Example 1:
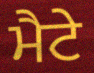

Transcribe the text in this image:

ਮੈਟੇ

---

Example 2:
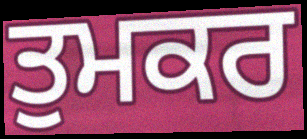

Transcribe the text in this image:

ਤੁਮਕਰ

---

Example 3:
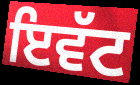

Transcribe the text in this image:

ਇਵੱਟ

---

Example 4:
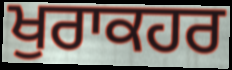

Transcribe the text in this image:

ਖੁਰਾਕਹਰ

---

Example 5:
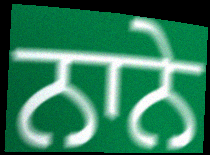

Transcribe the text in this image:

ਨਾਨੇ